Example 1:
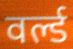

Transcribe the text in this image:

वर्ल्ड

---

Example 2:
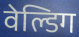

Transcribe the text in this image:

वेल्डिग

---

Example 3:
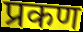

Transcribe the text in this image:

प्रकण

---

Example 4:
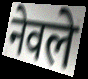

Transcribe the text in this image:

नेवले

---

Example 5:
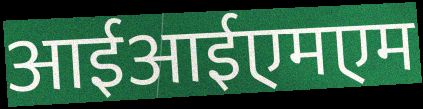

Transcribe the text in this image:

आईआईएमएम